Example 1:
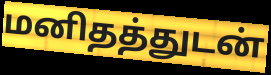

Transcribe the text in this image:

மனிதத்துடன்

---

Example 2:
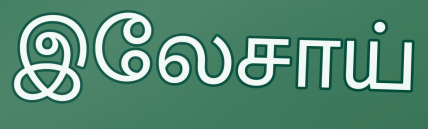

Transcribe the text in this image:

இலேசாய்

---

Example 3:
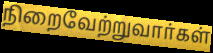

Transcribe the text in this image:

நிறைவேற்றுவார்கள்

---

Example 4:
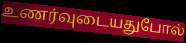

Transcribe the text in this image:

உணர்வுடையதுபோல்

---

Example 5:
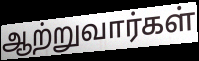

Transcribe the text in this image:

ஆற்றுவார்கள்